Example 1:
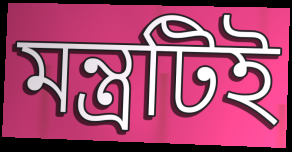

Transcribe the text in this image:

মন্ত্রটিই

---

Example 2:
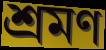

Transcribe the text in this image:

শ্রমণ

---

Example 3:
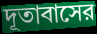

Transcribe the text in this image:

দূতাবাসের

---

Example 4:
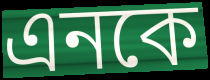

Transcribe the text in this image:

এনকে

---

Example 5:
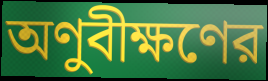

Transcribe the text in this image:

অণুবীক্ষণের